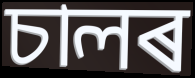
চালৰ